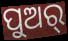
ପୁଅର୍